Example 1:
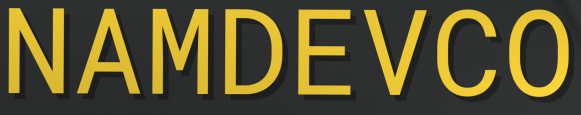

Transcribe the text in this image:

NAMDEVCO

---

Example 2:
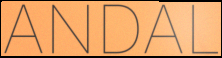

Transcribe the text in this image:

ANDAL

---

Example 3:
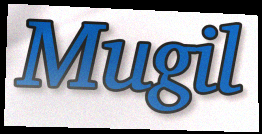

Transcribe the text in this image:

Mugil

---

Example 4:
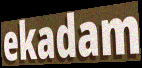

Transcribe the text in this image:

ekadam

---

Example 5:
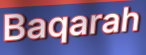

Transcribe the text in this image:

Baqarah